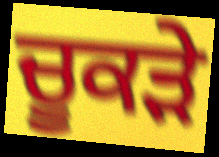
ਚੂਕੜੇ